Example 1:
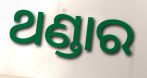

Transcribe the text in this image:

ଥଣ୍ଡାର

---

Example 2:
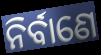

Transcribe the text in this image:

ନିର୍ବାଣେ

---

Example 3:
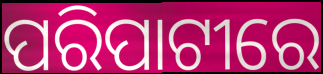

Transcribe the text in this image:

ପରିପାଟୀରେ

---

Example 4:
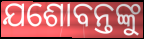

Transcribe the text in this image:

ଯଶୋବନ୍ତଙ୍କୁ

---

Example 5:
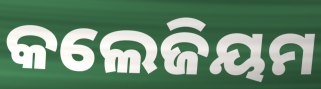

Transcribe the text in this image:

କଲେଜିୟମ